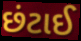
છંટાઈ